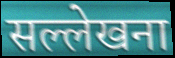
सल्लेखना